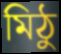
মিঠু